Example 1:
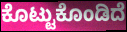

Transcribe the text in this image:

ಕೊಟ್ಟುಕೊಂಡಿದೆ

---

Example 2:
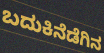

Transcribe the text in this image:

ಬದುಕಿನೆಡೆಗಿನ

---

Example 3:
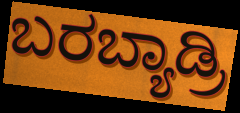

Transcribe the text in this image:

ಬರಬ್ಯಾಡ್ರಿ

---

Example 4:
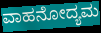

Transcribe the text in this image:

ವಾಹನೋದ್ಯಮ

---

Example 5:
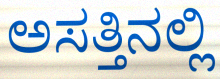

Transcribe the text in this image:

ಅಸತ್ತಿನಲ್ಲಿ